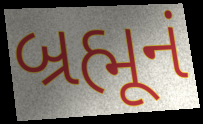
બ્રહ્મૂનં